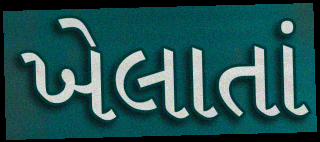
ખેલાતાં